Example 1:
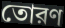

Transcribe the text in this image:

তোরণ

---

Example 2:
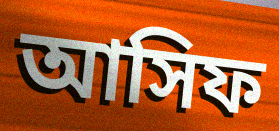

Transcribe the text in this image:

আসিফ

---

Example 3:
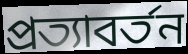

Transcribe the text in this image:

প্রত্যাবর্তন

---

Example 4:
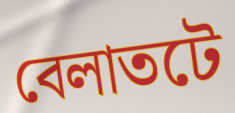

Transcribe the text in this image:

বেলাতটে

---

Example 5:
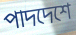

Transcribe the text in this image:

পাদদেশে